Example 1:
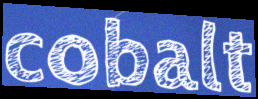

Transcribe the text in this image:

cobalt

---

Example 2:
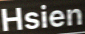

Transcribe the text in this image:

Hsien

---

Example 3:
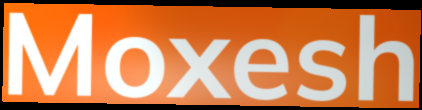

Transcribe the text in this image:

Moxesh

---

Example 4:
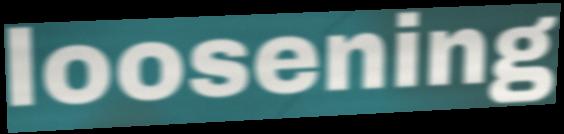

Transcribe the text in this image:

loosening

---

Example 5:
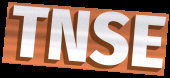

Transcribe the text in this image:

TNSE